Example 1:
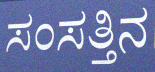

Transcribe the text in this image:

ಸಂಸತ್ತಿನ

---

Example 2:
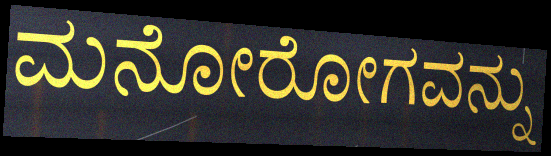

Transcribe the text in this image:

ಮನೋರೋಗವನ್ನು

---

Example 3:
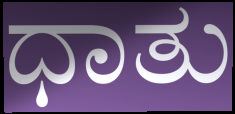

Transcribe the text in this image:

ಧಾತು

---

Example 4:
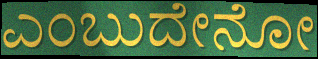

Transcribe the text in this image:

ಎಂಬುದೇನೋ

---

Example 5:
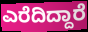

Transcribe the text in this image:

ಎರೆದಿದ್ದಾರೆ